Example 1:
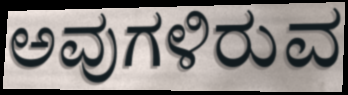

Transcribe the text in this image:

ಅವುಗಳಿರುವ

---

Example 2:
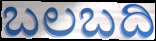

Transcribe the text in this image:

ಬಲಬದಿ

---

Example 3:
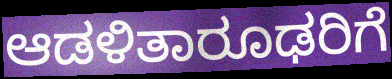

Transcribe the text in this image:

ಆಡಳಿತಾರೂಢರಿಗೆ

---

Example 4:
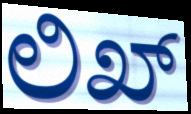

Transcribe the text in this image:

ಲಿಖ್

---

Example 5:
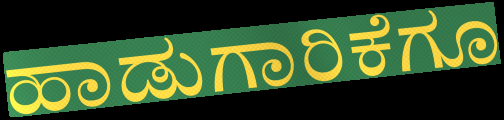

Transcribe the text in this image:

ಹಾಡುಗಾರಿಕೆಗೂ